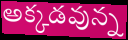
అక్కడవున్న